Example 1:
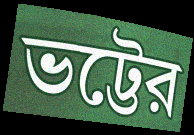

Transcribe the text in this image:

ভট্টের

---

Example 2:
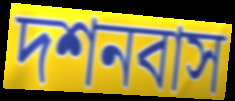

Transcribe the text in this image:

দশনবাস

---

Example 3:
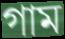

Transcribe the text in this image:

গাম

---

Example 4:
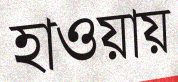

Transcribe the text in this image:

হাওয়ায়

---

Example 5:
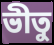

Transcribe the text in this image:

ভীতু